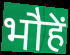
भौहें